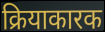
क्रियाकारक